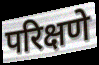
परिक्षणे